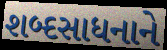
શબ્દસાધનાને